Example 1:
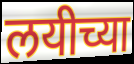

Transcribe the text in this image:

लयीच्या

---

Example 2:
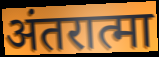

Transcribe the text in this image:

अंतरात्मा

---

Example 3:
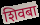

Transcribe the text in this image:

शिवबा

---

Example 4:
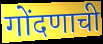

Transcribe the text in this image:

गोंदणाची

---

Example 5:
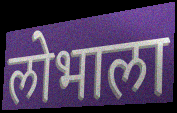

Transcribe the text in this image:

लोभाला